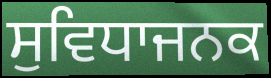
ਸੁਵਿਧਾਜਨਕ